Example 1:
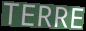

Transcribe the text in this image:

TERRE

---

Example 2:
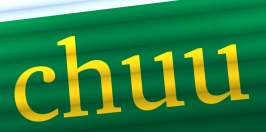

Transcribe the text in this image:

chuu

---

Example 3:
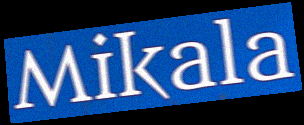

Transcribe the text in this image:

Mikala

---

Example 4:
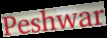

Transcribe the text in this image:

Peshwar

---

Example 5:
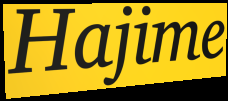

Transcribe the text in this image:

Hajime